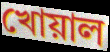
খোয়াল